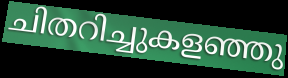
ചിതറിച്ചുകളഞ്ഞു